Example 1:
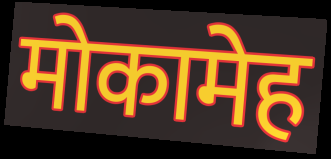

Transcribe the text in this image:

मोकामेह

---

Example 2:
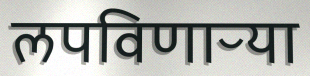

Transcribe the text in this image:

लपविणाऱ्या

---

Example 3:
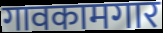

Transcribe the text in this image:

गावकामगार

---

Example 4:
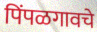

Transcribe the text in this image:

पिंपळगावचे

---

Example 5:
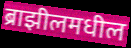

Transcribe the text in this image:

ब्राझीलमधील